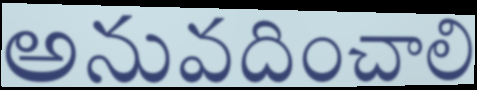
అనువదించాలి